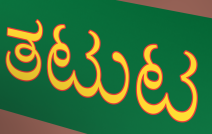
ತಟುಟ